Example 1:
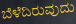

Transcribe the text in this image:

ಬೆಳೆದಿರುವುದು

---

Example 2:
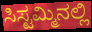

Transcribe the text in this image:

ಸಿಸ್ಟಮ್ಮಿನಲ್ಲಿ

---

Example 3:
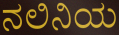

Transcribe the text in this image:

ನಲಿನಿಯ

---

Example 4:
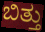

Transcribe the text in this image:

ಬಿತ್ತು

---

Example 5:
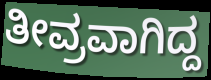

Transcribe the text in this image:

ತೀವ್ರವಾಗಿದ್ದ